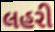
લહરી